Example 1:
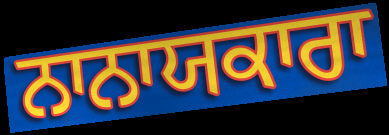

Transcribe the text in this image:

ਨਾਨਾਯਕਾਰਾ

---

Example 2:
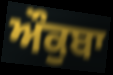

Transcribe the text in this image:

ਔਕੁਬਾ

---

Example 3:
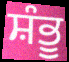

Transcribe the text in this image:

ਸ਼ੰਭੂ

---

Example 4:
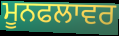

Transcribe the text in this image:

ਮੂਨਫਲਾਵਰ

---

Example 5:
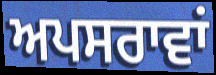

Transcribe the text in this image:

ਅਪਸਰਾਵਾਂ